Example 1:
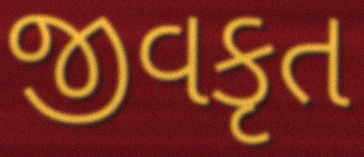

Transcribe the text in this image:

જીવકૃત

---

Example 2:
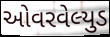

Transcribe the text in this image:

ઓવરવેલ્યુડ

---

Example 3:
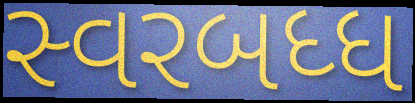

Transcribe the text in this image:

સ્વરબધ્ધ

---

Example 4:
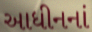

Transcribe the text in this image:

આધીનનાં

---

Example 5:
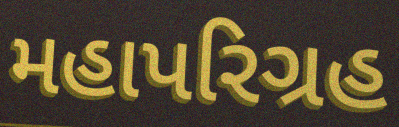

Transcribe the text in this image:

મહાપરિગ્રહ